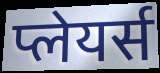
प्लेयर्स